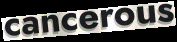
cancerous